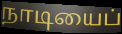
நாடியைப்